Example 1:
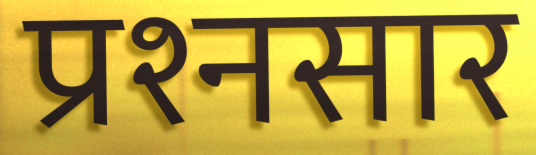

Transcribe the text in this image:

प्रश्‍नसार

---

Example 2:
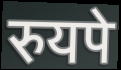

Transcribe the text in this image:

रुयपे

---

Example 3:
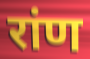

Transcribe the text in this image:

रांण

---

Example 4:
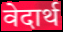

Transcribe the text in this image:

वेदार्थ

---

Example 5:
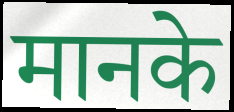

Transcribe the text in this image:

मानके